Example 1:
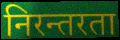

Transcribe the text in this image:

निरन्तरता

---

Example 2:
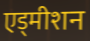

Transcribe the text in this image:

एड्मीशन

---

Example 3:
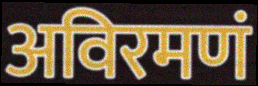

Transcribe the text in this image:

अविरमणं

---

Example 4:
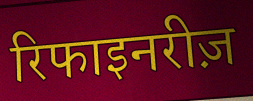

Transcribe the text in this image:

रिफाइनरीज़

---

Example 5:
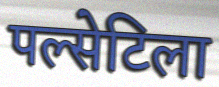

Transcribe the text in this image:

पल्सेटिला